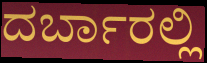
ದರ್ಬಾರಲ್ಲಿ